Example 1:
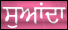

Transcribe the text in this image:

ਸੁਆਂਦਾ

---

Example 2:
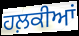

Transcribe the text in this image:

ਹਲ਼ਕੀਆਂ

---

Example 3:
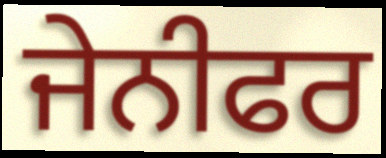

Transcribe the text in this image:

ਜੇਨੀਫਰ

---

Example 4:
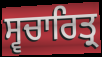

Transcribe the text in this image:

ਸ੍ਵਚਾਰਿਤ੍ਰ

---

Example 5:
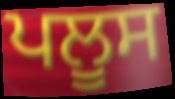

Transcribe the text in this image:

ਪਲੂਸ